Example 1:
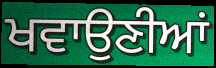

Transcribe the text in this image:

ਖਵਾਉਣੀਆਂ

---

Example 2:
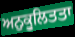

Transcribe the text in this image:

ਅਨੁਕੂਲਿਤਤਾ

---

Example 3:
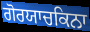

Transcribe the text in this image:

ਗੋਰਯਾਚਕਿਨਾ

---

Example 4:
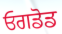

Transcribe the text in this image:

ਓਗਡੋਡ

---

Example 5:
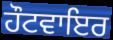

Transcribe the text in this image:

ਹੌਟਵਾਇਰ